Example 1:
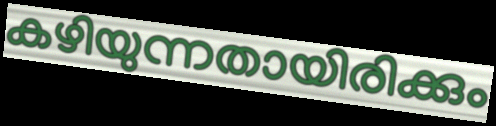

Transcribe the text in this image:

കഴിയുന്നതായിരിക്കും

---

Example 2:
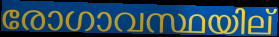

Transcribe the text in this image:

രോഗാവസ്ഥയില്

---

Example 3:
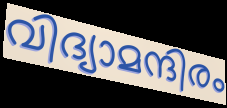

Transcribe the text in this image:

വിദ്യാമന്ദിരം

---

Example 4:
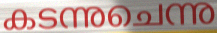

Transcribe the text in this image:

കടന്നുചെന്നു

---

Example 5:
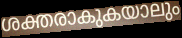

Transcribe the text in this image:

ശക്തരാകുകയാലും